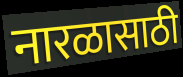
नारळासाठी